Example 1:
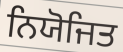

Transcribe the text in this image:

ਨਿਯੋਜਿਤ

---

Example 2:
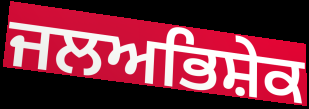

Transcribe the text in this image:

ਜਲਅਭਿਸ਼ੇਕ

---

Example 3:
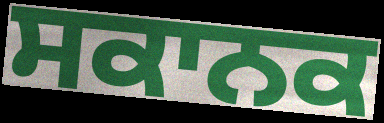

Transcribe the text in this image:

ਸਕਾਨਕ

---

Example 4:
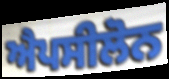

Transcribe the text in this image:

ਐਪਸੀਲੋਨ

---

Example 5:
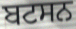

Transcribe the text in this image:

ਬਟਸਨ